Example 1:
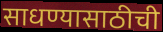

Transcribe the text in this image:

साधण्यासाठीची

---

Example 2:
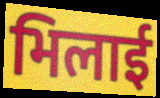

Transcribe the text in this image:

भिलाई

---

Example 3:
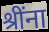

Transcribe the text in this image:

श्रींना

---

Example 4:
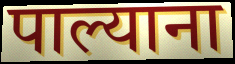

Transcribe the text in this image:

पाल्याना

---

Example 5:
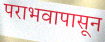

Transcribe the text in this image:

पराभवापासून